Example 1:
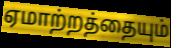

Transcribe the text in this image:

ஏமாற்றத்தையும்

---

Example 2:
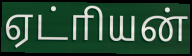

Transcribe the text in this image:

ஏட்ரியன்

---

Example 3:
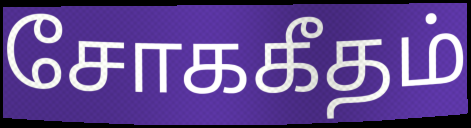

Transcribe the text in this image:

சோககீதம்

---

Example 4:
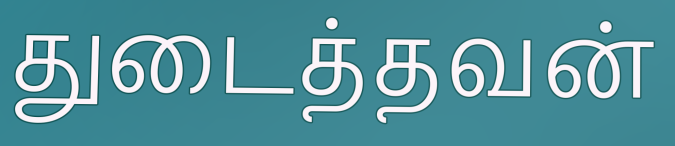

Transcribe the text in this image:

துடைத்தவன்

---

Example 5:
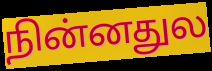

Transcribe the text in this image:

நின்னதுல